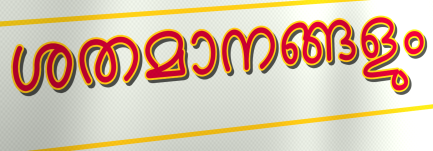
ശതമാനങ്ങളും